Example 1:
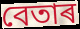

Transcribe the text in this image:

বেতাৰ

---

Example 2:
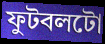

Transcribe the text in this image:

ফুটবলটো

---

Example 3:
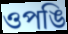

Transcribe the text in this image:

ওপঙি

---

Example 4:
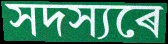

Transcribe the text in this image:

সদস্যৰে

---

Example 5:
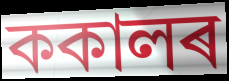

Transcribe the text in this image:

ককালৰ